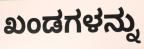
ಖಂಡಗಳನ್ನು